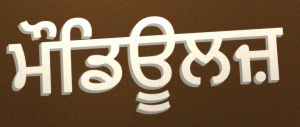
ਮੌਡਿਊਲਜ਼